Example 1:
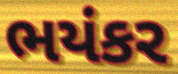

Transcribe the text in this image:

ભયંકર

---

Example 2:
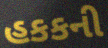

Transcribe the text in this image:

હકકની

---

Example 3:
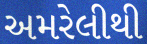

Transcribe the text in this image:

અમરેલીથી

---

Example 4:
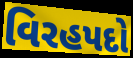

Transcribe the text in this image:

વિરહપદો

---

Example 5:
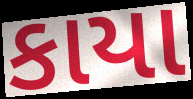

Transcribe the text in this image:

કાયા